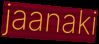
jaanaki